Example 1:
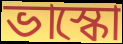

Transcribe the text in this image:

ভাস্কো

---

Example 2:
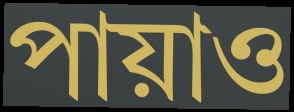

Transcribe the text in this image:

পায়াও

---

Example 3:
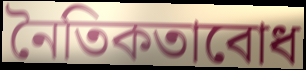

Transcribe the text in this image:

নৈতিকতাবোধ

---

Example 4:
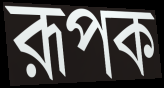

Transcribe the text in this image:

রূপক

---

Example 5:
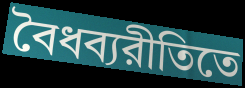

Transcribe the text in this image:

বৈধব্যরীতিতে